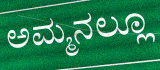
ಅಮ್ಮನಲ್ಲೂ